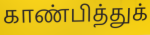
காண்பித்துக்